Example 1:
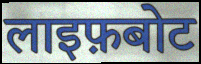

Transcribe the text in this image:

लाइफ़बोट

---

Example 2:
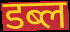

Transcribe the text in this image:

डब्ल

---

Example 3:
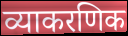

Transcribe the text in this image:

व्याकरणिक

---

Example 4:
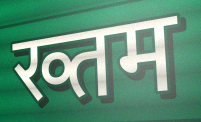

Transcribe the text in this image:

ख्तम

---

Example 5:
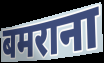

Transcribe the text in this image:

बमराना